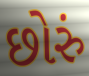
છોરું